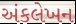
અંકલેખન